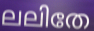
ലലിതേ